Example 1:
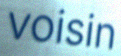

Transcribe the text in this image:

voisin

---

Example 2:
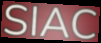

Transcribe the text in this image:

SIAC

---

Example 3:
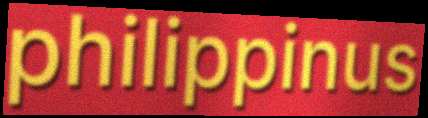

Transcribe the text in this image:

philippinus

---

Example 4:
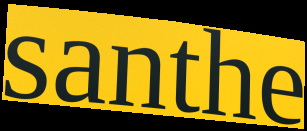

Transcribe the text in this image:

santhe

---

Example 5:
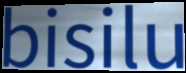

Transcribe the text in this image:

bisilu